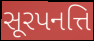
સૂરપનત્તિ